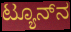
ಟ್ಯೂನ್‌ನ